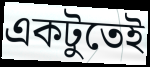
একটুতেই